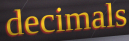
decimals